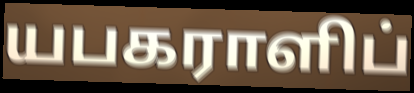
யபகராளிப்